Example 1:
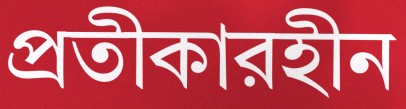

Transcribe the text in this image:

প্রতীকারহীন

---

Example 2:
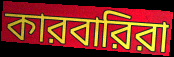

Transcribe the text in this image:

কারবারিরা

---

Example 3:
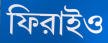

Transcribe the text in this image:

ফিরাইও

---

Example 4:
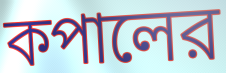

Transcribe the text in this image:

কপালের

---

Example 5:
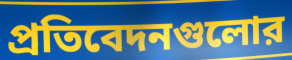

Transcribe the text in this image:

প্রতিবেদনগুলোর